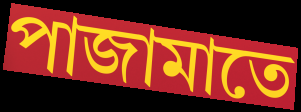
পাজামাতে